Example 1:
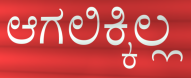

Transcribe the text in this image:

ಆಗಲಿಕ್ಕಿಲ್ಲ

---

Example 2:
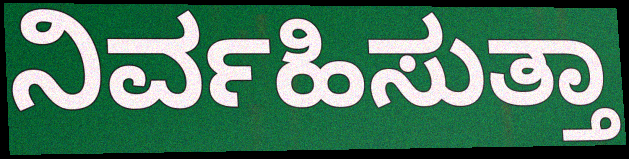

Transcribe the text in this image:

ನಿರ್ವಹಿಸುತ್ತಾ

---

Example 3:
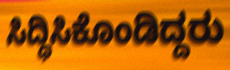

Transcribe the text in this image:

ಸಿದ್ಧಿಸಿಕೊಂಡಿದ್ದರು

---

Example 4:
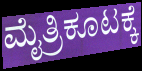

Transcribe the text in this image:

ಮೈತ್ರಿಕೂಟಕ್ಕೆ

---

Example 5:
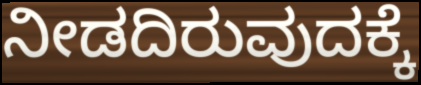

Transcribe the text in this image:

ನೀಡದಿರುವುದಕ್ಕೆ